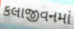
કલાજીવનમાં